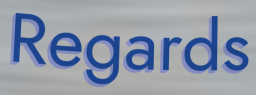
Regards